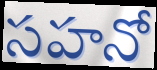
సహనో